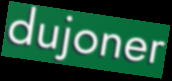
dujoner